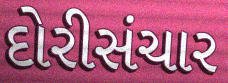
દોરીસંચાર